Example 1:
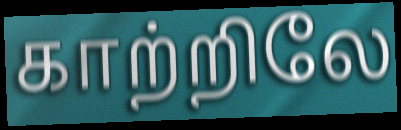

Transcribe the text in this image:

காற்றிலே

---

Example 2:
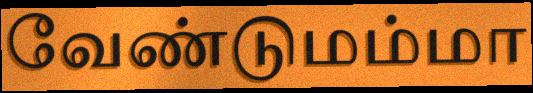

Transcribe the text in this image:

வேண்டுமம்மா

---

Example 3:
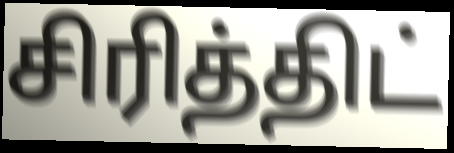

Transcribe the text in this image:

சிரித்திட்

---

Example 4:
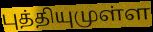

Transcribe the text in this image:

புத்தியுமுள்ள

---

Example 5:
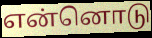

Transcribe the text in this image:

என்னொடு